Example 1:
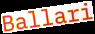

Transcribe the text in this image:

Ballari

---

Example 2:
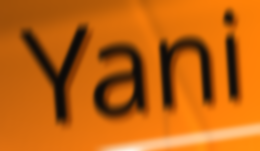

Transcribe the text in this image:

Yani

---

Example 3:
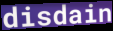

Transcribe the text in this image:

disdain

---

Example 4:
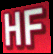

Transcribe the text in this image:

HF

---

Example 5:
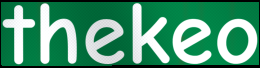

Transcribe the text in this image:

thekeo